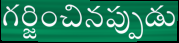
గర్జించినప్పుడు